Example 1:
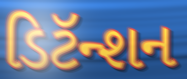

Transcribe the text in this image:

ડિટૅન્શન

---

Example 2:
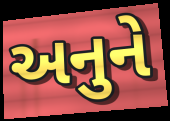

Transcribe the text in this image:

અનુને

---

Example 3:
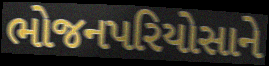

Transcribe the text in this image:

ભોજનપરિયોસાને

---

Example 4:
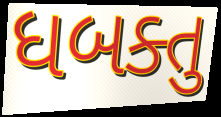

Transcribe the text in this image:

ધબક્તુ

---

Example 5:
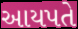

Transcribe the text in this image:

આયપતે